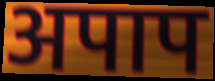
अपाप